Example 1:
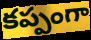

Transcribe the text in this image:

కప్పంగా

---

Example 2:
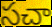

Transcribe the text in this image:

సచా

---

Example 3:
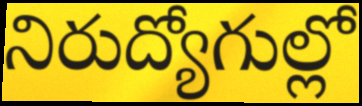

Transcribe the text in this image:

నిరుద్యోగుల్లో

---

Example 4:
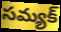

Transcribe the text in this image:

సమ్యక్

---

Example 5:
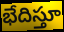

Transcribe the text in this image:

భేదిస్తూ